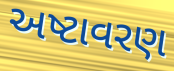
અષ્ટાવરણ